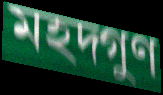
মহদ্গুণ